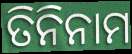
ତିନିନାମ